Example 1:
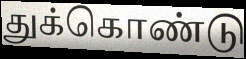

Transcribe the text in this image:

துக்கொண்டு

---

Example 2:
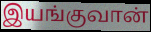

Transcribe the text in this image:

இயங்குவான்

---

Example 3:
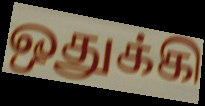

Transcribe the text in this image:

ஒதுக்கி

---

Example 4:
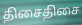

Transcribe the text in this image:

திசைதிசை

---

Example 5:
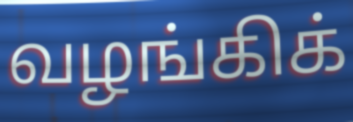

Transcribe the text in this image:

வழங்கிக்